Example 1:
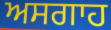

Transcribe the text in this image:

ਅਸਗਾਹ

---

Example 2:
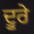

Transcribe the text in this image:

ਦੂਰੇ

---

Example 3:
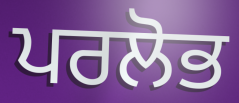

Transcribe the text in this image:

ਪਰਲੋਭ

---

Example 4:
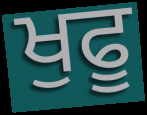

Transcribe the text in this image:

ਖੁਫੂ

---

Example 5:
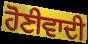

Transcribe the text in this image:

ਹੋਣੀਵਾਦੀ